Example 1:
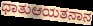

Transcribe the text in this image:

ಧಾತುಆಯತನಾನ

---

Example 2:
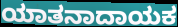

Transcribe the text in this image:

ಯಾತನಾದಾಯಕ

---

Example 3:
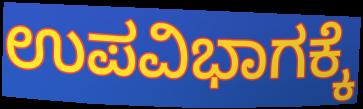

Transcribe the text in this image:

ಉಪವಿಭಾಗಕ್ಕೆ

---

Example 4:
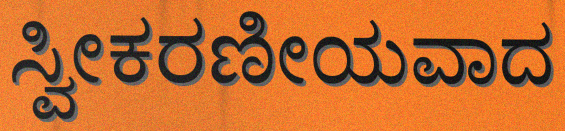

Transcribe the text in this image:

ಸ್ವೀಕರಣೀಯವಾದ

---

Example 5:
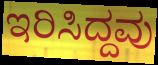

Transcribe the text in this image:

ಇರಿಸಿದ್ದವು